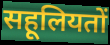
सहूलियतों